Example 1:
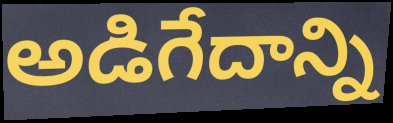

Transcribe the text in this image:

అడిగేదాన్ని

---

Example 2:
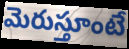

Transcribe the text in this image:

మెరుస్తూంటే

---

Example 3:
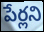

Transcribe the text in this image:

పేర్లని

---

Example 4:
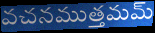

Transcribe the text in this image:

వచనముత్తమమ్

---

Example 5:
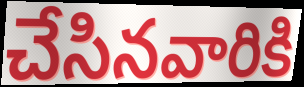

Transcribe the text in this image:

చేసినవారికి